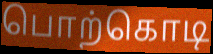
பொற்கொடி